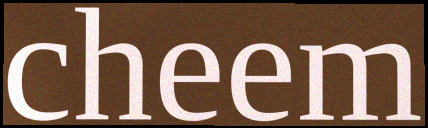
cheem